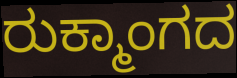
ರುಕ್ಮಾಂಗದ